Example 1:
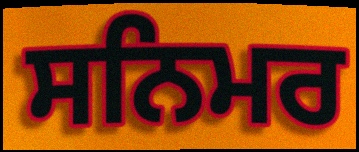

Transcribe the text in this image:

ਸਨਿਮਰ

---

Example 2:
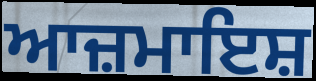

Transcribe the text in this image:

ਆਜ਼ਮਾਇਸ਼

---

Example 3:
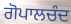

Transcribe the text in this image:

ਗੋਪਾਲਚੰਦ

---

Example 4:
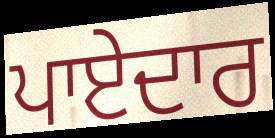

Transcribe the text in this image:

ਪਾਏਦਾਰ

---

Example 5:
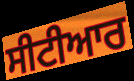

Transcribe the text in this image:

ਸੀਟੀਆਰ